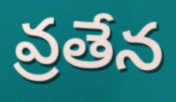
వ్రతేన